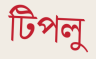
টিপলু